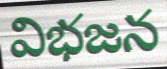
విభజన